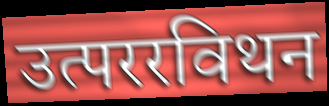
उत्पररविथन